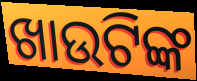
ଖାଉଟିଙ୍କ